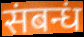
संबन्धं